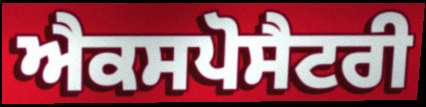
ਐਕਸਪੋਸੈਟਰੀ